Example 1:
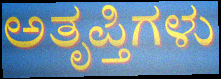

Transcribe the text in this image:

ಅತೃಪ್ತಿಗಳು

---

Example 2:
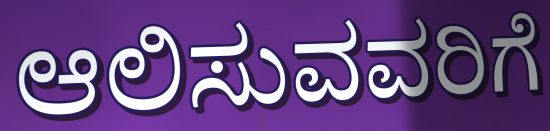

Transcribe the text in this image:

ಆಲಿಸುವವರಿಗೆ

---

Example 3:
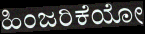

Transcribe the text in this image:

ಹಿಂಜರಿಕೆಯೋ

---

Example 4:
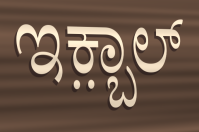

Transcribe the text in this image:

ಇಕ಼್ಬಾಲ್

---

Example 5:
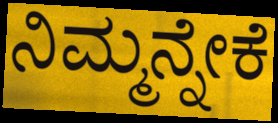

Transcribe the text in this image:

ನಿಮ್ಮನ್ನೇಕೆ